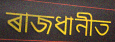
ৰাজধানীত